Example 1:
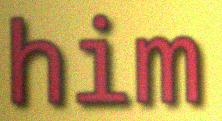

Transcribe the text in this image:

him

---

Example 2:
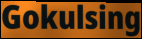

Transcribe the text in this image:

Gokulsing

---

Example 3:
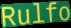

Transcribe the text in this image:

Rulfo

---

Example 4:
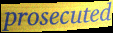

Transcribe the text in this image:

prosecuted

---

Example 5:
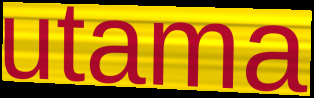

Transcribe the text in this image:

utama